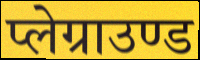
प्लेग्राउण्ड